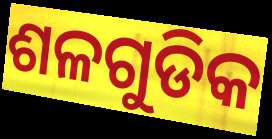
ଶଳଗୁଡିକ